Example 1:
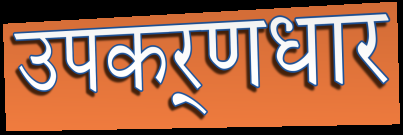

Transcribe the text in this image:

उपकर्णधार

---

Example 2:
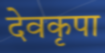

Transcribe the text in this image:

देवकृपा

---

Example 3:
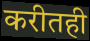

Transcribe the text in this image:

करीतही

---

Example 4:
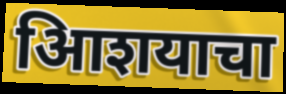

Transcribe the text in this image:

आिशयाचा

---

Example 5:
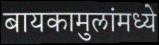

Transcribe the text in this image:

बायकामुलांमध्ये